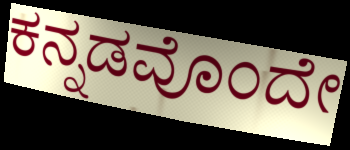
ಕನ್ನಡವೊಂದೇ